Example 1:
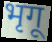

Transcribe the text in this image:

भृगू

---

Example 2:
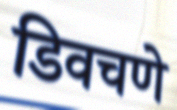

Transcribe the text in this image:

डिवचणे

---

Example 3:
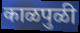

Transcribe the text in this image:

काळपुळी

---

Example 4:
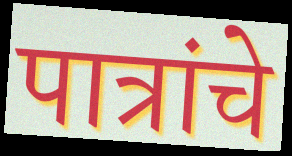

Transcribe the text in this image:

पात्रांचे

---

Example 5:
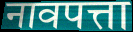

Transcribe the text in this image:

नावपत्ता